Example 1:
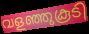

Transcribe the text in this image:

വളഞ്ഞുകൂടി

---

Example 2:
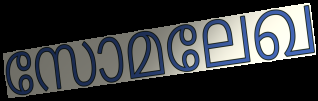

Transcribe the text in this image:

സോമലേഖ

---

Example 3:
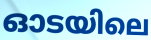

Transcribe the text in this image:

ഓടയിലെ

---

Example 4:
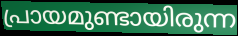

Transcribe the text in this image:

പ്രായമുണ്ടായിരുന്ന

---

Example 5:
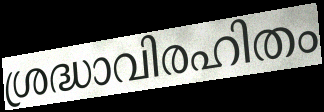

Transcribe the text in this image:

ശ്രദ്ധാവിരഹിതം